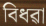
বিধৱা